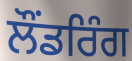
ਲੌਂਡਰਿੰਗ